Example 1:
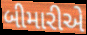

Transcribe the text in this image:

બીમારીએ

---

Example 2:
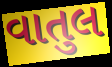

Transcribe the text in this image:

વાતુલ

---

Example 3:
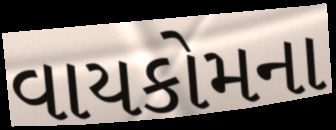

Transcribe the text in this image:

વાયકોમના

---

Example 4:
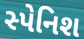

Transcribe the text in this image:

સ્પેનિશ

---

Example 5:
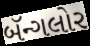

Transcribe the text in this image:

બૅન્ગલોર